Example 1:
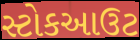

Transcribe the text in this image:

સ્ટોકઆઉટ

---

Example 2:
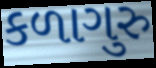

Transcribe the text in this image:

કળાગુરુ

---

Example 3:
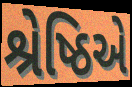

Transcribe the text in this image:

શ્રેષ્ઠિએ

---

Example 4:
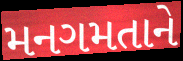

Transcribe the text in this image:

મનગમતાને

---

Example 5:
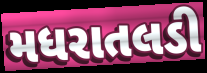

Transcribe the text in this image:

મધરાતલડી